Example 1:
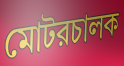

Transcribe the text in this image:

মোটরচালক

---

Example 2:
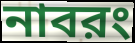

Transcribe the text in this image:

নাবরং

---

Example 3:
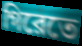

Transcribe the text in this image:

গিরেতে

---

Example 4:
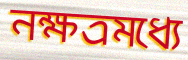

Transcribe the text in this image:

নক্ষত্রমধ্যে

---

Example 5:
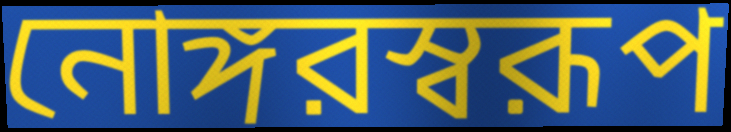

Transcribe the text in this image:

নোঙ্গরস্বরূপ